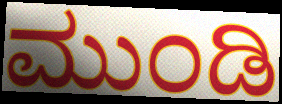
ಮುಂಡಿ